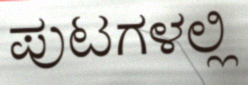
ಪುಟಗಳಲ್ಲಿ